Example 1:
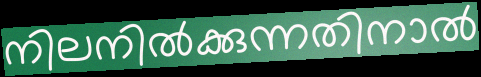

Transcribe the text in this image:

നിലനിൽക്കുന്നതിനാൽ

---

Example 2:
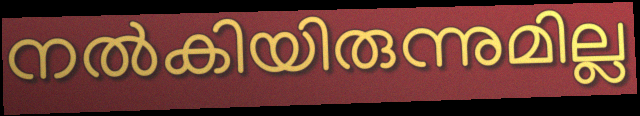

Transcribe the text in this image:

നൽകിയിരുന്നുമില്ല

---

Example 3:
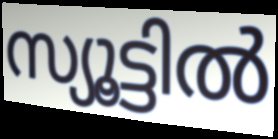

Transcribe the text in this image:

സ്യൂട്ടിൽ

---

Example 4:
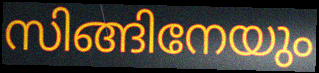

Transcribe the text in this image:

സിങ്ങിനേയും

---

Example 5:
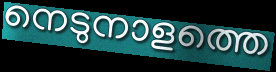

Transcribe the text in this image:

നെടുനാളത്തെ